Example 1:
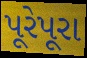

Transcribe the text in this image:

પૂરેપૂરા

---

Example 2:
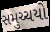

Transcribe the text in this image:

સમુચ્ચયો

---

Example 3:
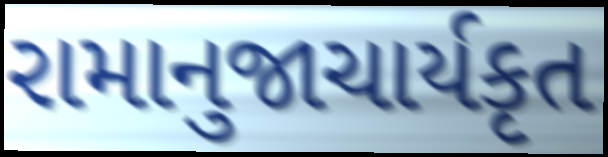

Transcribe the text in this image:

રામાનુજાચાર્યકૃત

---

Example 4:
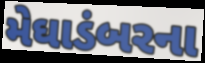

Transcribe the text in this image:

મેઘાડંબરના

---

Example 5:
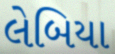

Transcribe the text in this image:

લેબિયા